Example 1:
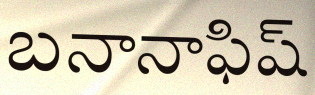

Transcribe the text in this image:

బనానాఫిష్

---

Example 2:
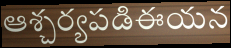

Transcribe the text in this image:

ఆశ్చర్యపడిఈయన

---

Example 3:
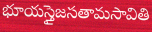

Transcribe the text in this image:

భూయస్తైజసతామసావితి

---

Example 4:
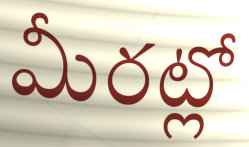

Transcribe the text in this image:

మీరట్లో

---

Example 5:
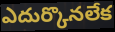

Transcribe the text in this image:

ఎదుర్కొనలేక